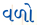
વળો